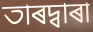
তাৰদ্বাৰা